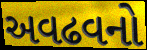
અવઢવનો